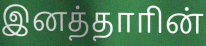
இனத்தாரின்